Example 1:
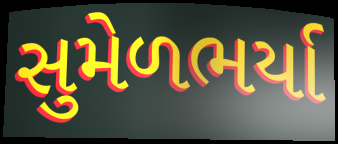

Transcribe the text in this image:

સુમેળભર્યા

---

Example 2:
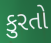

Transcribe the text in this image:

કુરતો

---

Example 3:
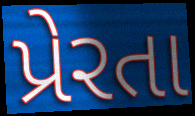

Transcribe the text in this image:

પ્રેરતા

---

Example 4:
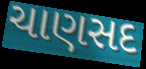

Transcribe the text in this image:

ચાણસદ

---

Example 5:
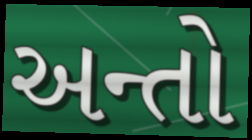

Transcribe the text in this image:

અન્તો